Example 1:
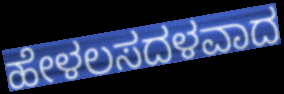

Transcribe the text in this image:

ಹೇಳಲಸದಳವಾದ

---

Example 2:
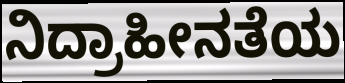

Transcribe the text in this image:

ನಿದ್ರಾಹೀನತೆಯ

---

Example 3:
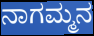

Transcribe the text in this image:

ನಾಗಮ್ಮನ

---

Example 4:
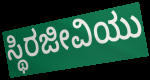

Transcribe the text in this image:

ಸ್ಥಿರಜೀವಿಯು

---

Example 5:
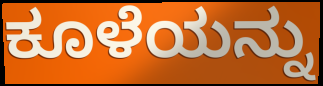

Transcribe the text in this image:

ಕೂಳೆಯನ್ನು